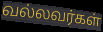
வல்லவர்கள்